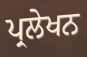
ਪ੍ਰਲੇਖਨ